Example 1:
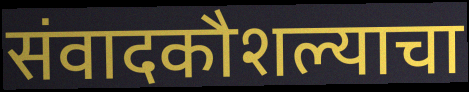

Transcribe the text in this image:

संवादकौशल्याचा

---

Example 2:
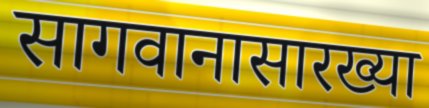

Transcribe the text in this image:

सागवानासारख्या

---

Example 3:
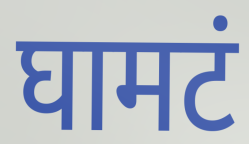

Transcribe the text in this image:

घामटं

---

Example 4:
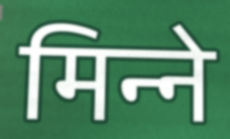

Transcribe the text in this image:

मिन्ने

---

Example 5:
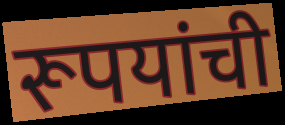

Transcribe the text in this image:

रूपयांची